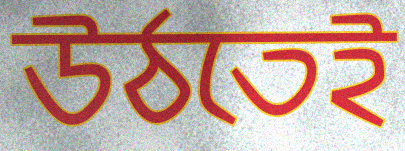
উঠতেই